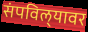
संपविल्यावर